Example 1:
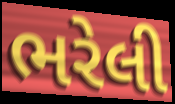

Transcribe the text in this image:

ભરેલી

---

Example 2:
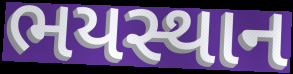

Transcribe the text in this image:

ભયસ્થાન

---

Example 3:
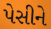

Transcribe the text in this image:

પેસીને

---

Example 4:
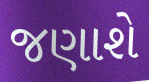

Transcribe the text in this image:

જણાશે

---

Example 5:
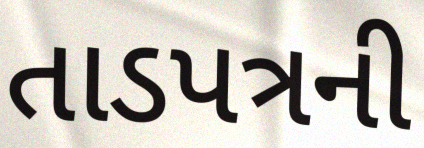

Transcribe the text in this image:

તાડપત્રની